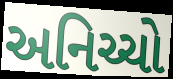
અનિચ્ચો